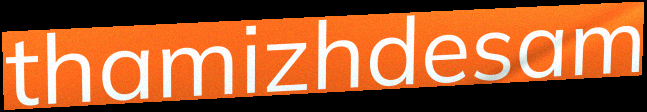
thamizhdesam